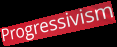
Progressivism